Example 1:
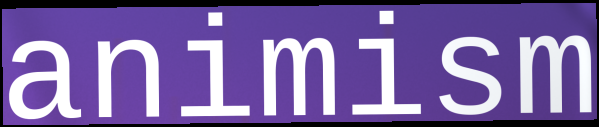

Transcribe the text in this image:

animism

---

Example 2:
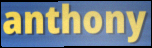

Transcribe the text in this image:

anthony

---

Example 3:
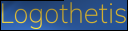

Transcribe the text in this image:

Logothetis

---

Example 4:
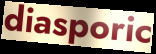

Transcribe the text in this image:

diasporic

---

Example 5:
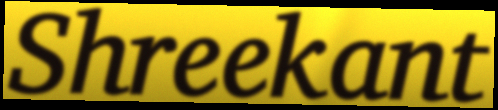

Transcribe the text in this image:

Shreekant